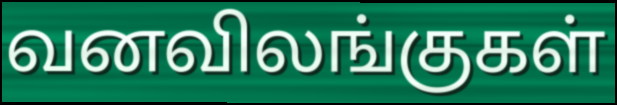
வனவிலங்குகள்